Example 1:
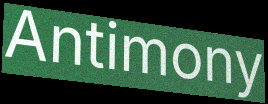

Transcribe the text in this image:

Antimony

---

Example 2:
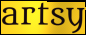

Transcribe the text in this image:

artsy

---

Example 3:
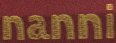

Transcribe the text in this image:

nanni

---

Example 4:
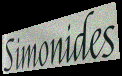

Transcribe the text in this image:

Simonides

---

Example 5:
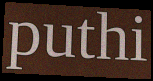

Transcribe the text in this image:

puthi